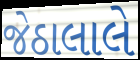
જેઠાલાલે